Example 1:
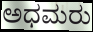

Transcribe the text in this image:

ಅಧಮರು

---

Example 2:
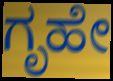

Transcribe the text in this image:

ಗೃಹೇ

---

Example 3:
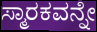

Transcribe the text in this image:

ಸ್ಮಾರಕವನ್ನೇ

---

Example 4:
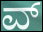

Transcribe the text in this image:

ವ್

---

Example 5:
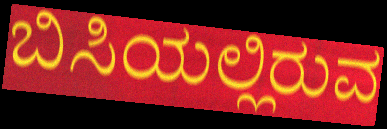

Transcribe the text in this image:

ಬಿಸಿಯಲ್ಲಿರುವ